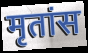
मृतांस